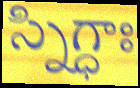
స్నిగ్ధాః